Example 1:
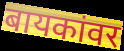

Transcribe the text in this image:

बायकांवर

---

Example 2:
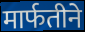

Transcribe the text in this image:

मार्फतीने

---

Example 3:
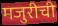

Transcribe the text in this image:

मजुरीची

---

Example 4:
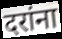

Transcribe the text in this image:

दरांना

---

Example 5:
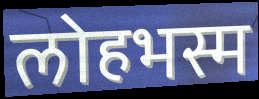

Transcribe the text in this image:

लोहभस्म